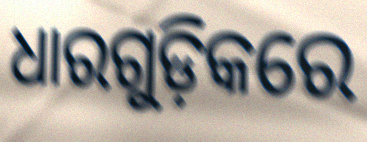
ଧାରଗୁଡ଼ିକରେ